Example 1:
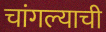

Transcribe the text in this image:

चांगल्याची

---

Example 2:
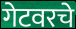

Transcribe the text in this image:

गेटवरचे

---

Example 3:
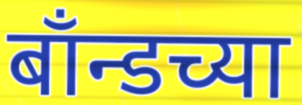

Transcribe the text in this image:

बाँन्डच्या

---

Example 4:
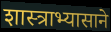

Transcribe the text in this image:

शास्त्राभ्यासाने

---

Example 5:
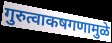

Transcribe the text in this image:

गुरुत्वाकषगणामुळे